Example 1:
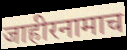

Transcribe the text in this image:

जाहीरनामाच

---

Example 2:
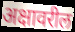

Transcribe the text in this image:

अक्षावरील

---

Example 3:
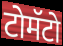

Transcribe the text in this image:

टोमॅटो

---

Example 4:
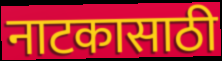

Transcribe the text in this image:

नाटकासाठी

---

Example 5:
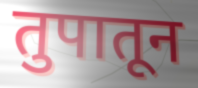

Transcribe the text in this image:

तुपातून